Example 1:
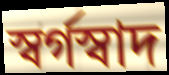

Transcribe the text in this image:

স্বর্গস্বাদ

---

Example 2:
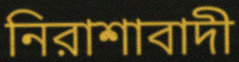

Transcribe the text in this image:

নিরাশাবাদী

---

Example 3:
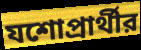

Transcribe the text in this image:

যশোপ্রার্থীর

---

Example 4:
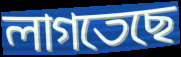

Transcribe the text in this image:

লাগতেছে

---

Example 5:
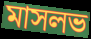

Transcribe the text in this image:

মাসলভ